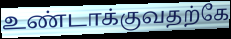
உண்டாக்குவதற்கே